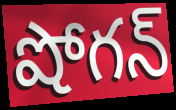
షోగన్